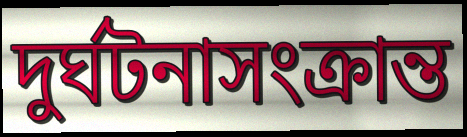
দুর্ঘটনাসংক্রান্ত